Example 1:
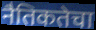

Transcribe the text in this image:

नैतिकतेचा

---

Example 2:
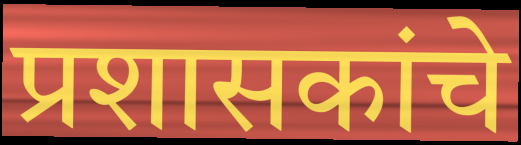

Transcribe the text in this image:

प्रशासकांचे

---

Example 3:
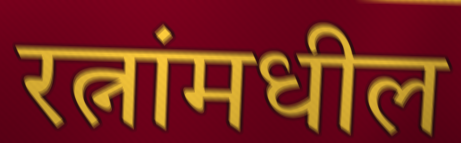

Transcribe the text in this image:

रत्नांमधील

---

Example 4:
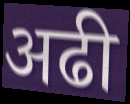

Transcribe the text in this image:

अढी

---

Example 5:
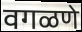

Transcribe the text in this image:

वगळणे